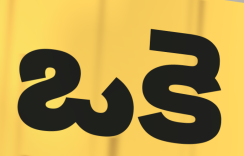
ఒకె